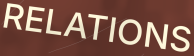
RELATIONS